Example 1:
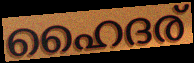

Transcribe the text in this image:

ഹൈദര്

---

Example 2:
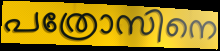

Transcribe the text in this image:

പത്രോസിനെ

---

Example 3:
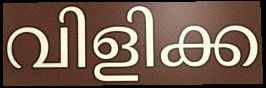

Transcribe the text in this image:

വിളിക്ക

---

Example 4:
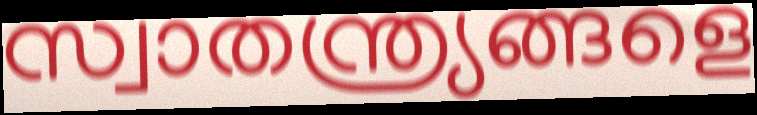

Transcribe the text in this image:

സ്വാതന്ത്ര്യങ്ങളെ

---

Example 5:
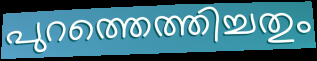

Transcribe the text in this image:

പുറത്തെത്തിച്ചതും